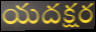
యదక్షర